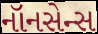
નૉનસેન્સ